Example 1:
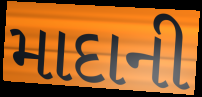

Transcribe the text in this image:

માદાની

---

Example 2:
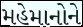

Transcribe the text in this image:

મહેમાનોને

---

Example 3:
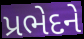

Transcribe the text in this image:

પ્રભેદને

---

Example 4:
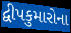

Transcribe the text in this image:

દ્વીપકુમારોના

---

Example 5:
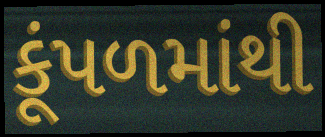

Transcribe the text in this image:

કૂંપળમાંથી